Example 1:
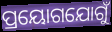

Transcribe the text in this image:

ପ୍ରୟୋଗଯୋଗୁଁ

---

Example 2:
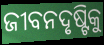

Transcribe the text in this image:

ଜୀବନଦୃଷ୍ଟିକୁ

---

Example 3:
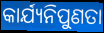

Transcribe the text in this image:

କାର୍ଯ୍ୟନିପୁଣତା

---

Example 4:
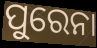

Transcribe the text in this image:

ପୁରେନା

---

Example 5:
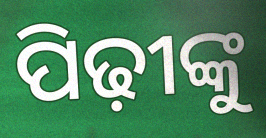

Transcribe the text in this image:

ପିଢ଼ୀଙ୍କୁ